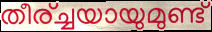
തീര്ച്ചയായുമുണ്ട്